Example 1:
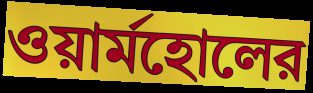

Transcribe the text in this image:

ওয়ার্মহোলের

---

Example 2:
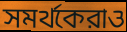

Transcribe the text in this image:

সমর্থকেরাও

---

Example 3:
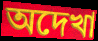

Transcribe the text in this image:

অদেখা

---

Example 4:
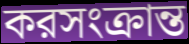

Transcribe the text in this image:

করসংক্রান্ত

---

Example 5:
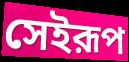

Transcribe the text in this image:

সেইরূপ